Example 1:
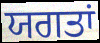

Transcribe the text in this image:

ਯਗਤਾਂ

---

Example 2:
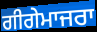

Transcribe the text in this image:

ਗੀਗੇਮਾਜਰਾ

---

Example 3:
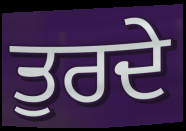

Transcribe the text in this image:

ਤੁਰਦੇ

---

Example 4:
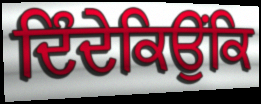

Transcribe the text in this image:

ਦਿੰਦੇਕਿਉਂਕਿ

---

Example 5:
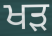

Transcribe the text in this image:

ਖੜ